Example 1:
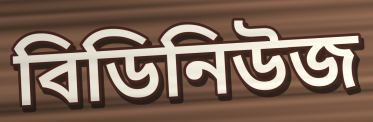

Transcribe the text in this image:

বিডিনিউজ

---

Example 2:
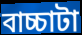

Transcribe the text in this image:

বাচ্চাটা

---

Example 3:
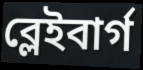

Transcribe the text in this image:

ব্লেইবার্গ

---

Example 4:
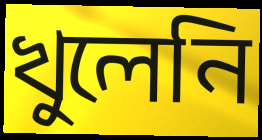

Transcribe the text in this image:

খুলেনি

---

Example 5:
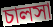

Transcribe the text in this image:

চালসা